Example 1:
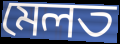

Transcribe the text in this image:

মেলত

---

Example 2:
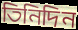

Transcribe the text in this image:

তিনিদিন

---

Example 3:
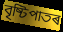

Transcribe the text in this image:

বৃষ্টিপাতৰ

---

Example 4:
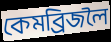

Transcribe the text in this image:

কেমব্ৰিজলৈ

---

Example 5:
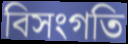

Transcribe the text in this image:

বিসংগতি